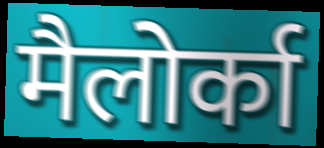
मैलोर्का